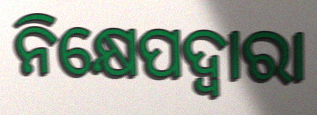
ନିକ୍ଷେପଦ୍ୱାରା